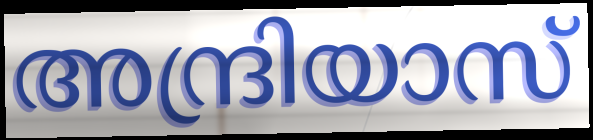
അന്ദ്രിയാസ്